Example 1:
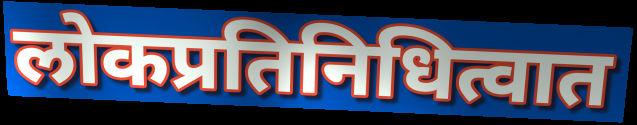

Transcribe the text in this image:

लोकप्रतिनिधित्वात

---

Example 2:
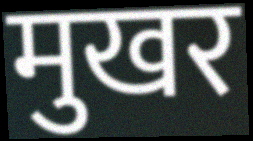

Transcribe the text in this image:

मुखर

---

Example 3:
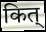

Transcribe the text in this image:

कित्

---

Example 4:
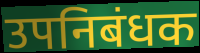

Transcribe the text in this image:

उपनिबंधक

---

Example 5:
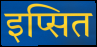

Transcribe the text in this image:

इप्सित